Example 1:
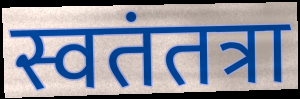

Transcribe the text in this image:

स्वतंतत्रा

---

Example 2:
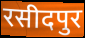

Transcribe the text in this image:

रसीदपुर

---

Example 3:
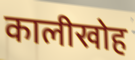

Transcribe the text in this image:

कालीखोह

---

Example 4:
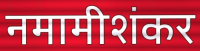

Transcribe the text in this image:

नमामीशंकर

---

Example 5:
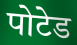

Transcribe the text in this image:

पोटेड